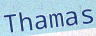
Thamas